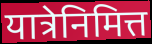
यात्रेनिमित्त